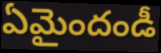
ఏమైందండీ